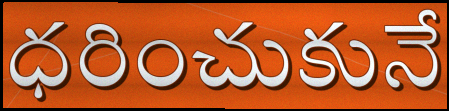
ధరించుకునే